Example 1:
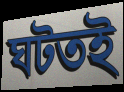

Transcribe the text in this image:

ঘটতই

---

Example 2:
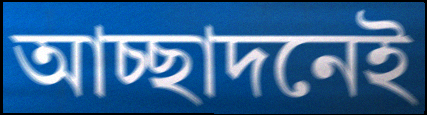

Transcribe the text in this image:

আচ্ছাদনেই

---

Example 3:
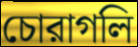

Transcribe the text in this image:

চোরাগলি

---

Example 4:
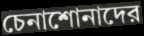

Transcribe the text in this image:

চেনাশোনাদের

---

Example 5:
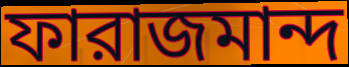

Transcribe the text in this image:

ফারাজমান্দ